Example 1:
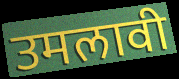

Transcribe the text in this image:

उमलावी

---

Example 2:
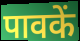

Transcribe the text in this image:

पावकें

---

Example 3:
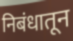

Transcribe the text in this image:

निबंधातून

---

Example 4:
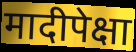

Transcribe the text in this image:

मादीपेक्षा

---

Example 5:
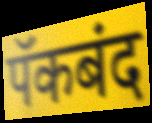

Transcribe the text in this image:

पॅकबंद